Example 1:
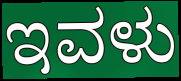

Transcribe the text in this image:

ಇವಳು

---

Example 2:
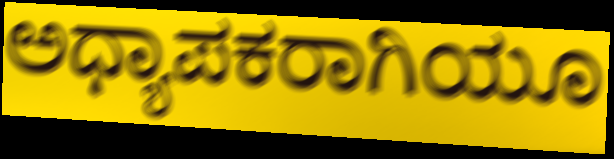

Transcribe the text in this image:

ಅಧ್ಯಾಪಕರಾಗಿಯೂ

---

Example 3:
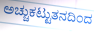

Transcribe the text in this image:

ಅಚ್ಚುಕಟ್ಟುತನದಿಂದ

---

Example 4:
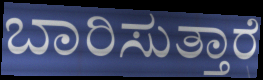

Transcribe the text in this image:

ಬಾರಿಸುತ್ತಾರೆ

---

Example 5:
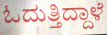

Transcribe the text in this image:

ಓದುತ್ತಿದ್ದಾಳೆ